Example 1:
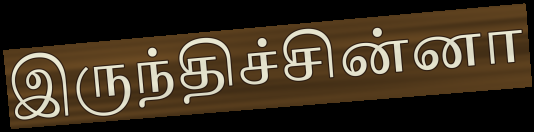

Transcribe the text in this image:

இருந்திச்சின்னா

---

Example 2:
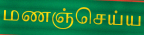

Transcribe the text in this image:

மணஞ்செய்ய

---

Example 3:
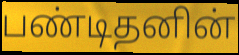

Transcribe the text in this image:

பண்டிதனின்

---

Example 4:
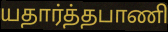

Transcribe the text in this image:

யதார்த்தபாணி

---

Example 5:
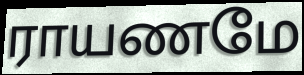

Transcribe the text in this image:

ராயணமே